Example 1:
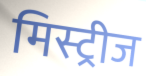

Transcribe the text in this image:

मिस्ट्रीज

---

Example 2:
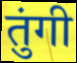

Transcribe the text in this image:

तुंगी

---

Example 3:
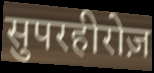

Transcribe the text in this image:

सुपरहीरोज़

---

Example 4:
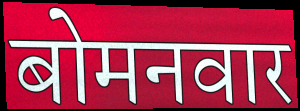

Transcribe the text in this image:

बोमनवार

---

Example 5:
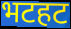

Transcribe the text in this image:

भटहट